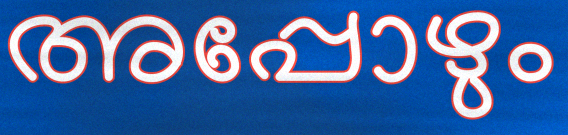
അപ്പോഴും